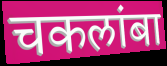
चकलांबा